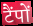
टैंपों